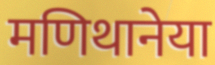
मणिथानेया